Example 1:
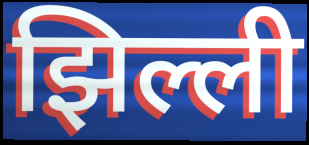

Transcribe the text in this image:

झिल्ली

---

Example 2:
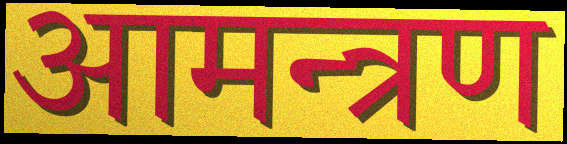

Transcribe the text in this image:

आमन्त्रण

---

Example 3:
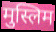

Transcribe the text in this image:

मुस्लिम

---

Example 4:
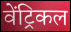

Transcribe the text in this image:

वेंट्रिकल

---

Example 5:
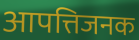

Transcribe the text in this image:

आपत्तिजनक